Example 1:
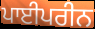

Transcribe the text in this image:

ਪਾਈਪਰੀਨ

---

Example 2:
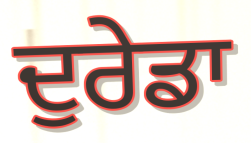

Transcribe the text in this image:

ਦੁਰੇਡਾ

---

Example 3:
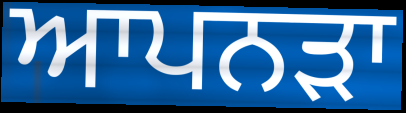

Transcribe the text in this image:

ਆਪਨੜਾ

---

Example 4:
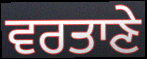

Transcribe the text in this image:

ਵਰਤਾਣੇ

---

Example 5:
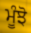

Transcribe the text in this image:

ਮੂੰਝੋ